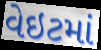
વેઇટમાં